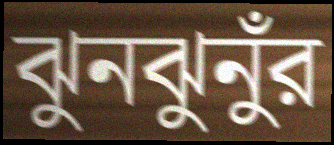
ঝুনঝুনুঁর